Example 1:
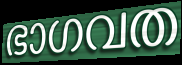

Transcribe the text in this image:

ഭാഗവത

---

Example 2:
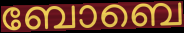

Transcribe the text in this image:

ബോബെ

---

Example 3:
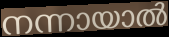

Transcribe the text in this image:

നന്നായാൽ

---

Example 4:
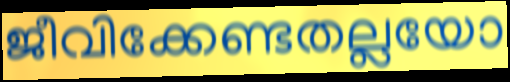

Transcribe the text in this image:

ജീവിക്കേണ്ടതല്ലയോ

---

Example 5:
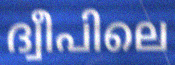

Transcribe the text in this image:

ദ്വീപിലെ